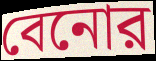
বেনোর